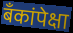
बँकांपेक्षा